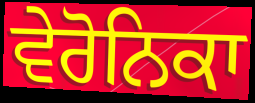
ਵੇਰੋਨਿਕਾ